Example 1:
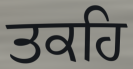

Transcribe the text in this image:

ਤਕਹਿ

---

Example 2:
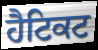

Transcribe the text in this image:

ਹੈਟਿਕਟ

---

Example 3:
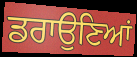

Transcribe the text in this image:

ਡਰਾਉਣਿਆਂ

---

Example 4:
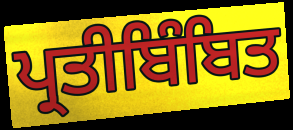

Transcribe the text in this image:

ਪ੍ਰਤੀਬਿੰਬਿਤ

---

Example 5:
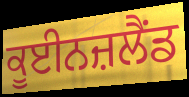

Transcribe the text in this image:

ਕੂਈਨਜ਼ਲੈਂਡ